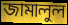
জামালুল